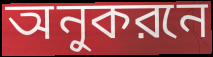
অনুকরনে